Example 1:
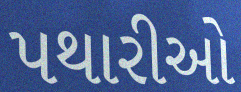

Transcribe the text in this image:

પથારીઓ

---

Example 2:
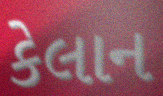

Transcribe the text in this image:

કેલાન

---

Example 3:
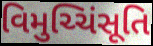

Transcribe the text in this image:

વિમુચ્ચિંસૂતિ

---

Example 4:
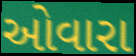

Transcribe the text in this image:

ઓવારા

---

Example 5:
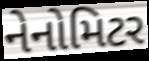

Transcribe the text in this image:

નેનોમિટર